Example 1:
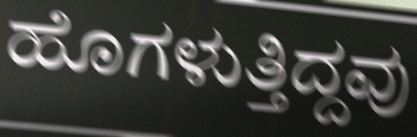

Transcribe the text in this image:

ಹೊಗಳುತ್ತಿದ್ದವು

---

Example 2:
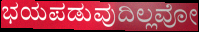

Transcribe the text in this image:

ಭಯಪಡುವುದಿಲ್ಲವೋ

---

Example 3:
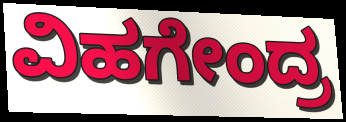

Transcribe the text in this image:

ವಿಹಗೇಂದ್ರ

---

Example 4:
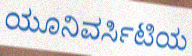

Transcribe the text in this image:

ಯೂನಿವರ್ಸಿಟಿಯ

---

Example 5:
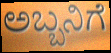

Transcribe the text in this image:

ಅಬ್ಬನಿಗೆ